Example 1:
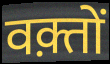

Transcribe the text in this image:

वक़्तों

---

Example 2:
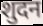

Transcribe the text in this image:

शुदन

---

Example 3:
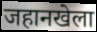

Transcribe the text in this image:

जहानखेला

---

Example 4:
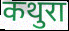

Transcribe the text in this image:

कथुरा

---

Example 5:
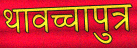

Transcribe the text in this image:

थावच्चापुत्र